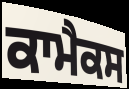
ਕਾਮੈਕਸ